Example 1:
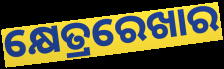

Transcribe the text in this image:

କ୍ଷେତ୍ରରେଖାର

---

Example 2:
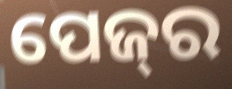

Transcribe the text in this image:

ପେଜ୍‌ର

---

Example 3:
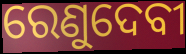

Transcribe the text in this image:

ରେଣୁଦେବୀ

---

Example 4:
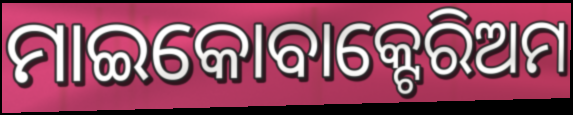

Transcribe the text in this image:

ମାଇକୋବାକ୍ଟେରିଅମ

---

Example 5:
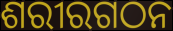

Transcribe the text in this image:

ଶରୀରଗଠନ